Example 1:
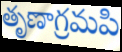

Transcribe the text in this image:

తృణాగ్రమపి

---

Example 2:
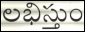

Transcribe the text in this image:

లభిస్తుం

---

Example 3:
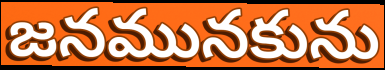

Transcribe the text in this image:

జనమునకును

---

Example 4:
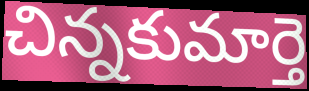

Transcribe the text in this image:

చిన్నకుమార్తె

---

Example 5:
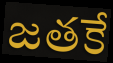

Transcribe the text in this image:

జతకే